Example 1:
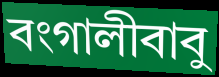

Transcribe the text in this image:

বংগালীবাবু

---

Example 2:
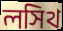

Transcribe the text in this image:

লসিথ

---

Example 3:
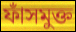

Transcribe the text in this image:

ফাঁসমুক্ত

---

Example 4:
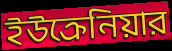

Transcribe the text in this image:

ইউক্রেনিয়ার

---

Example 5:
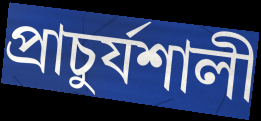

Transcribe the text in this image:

প্রাচুর্যশালী